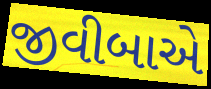
જીવીબાએ